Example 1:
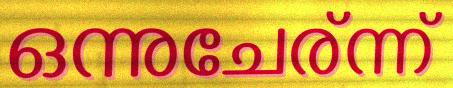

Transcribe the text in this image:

ഒന്നുചേര്ന്ന്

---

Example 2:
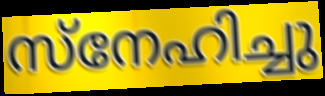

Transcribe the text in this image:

സ്നേഹിച്ചു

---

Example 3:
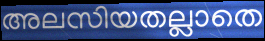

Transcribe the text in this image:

അലസിയതല്ലാതെ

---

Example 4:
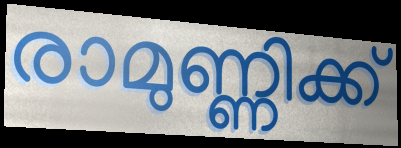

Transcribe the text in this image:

രാമുണ്ണിക്ക്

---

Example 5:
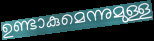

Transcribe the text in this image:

ഉണ്ടാകുമെന്നുമുള്ള